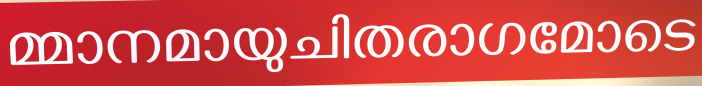
മ്മാനമായുചിതരാഗമോടെ